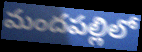
మందపల్లిలో